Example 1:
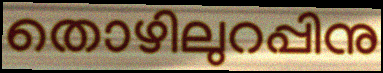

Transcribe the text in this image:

തൊഴിലുറപ്പിനു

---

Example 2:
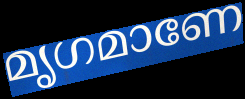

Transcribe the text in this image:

മൃഗമാണേ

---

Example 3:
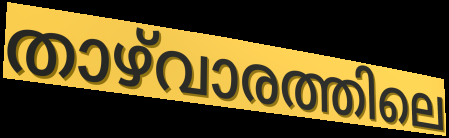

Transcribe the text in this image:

താഴ്‌വാരത്തിലെ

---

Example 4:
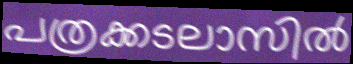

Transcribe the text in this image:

പത്രക്കടലാസിൽ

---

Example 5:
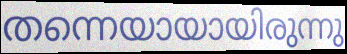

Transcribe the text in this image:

തന്നെയായായിരുന്നു